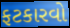
ફટકારવો